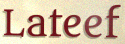
Lateef